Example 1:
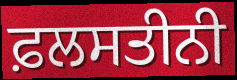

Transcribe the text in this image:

ਫ਼ਲਸਤੀਨੀ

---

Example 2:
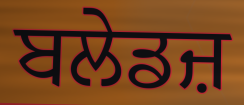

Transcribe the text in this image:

ਬਲੇਡਜ਼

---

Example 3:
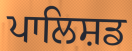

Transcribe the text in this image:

ਪਾਲਿਸ਼ਡ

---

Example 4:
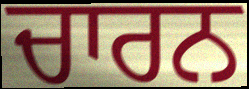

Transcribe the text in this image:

ਚਾਰਨ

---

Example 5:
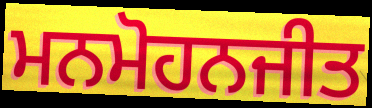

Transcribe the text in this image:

ਮਨਮੋਹਨਜੀਤ